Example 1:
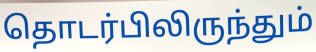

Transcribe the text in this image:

தொடர்பிலிருந்தும்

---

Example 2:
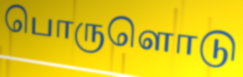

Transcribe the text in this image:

பொருளொடு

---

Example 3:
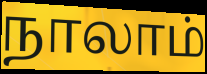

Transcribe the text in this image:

நாலாம்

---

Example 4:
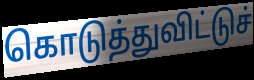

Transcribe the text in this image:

கொடுத்துவிட்டுச்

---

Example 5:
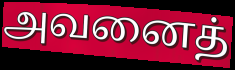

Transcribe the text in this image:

அவனைத்